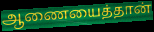
ஆணையைத்தான்